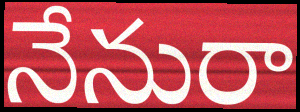
నేనురా